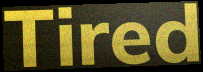
Tired